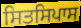
ਸਿਤਸਿਪਾਸ